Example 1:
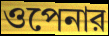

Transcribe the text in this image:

ওপেনার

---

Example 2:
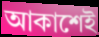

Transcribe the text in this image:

আকাশেই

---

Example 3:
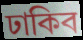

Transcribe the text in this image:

ঢাকিব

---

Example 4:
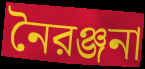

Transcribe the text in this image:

নৈরঞ্জনা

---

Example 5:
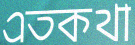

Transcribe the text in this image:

এতকথা